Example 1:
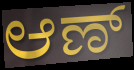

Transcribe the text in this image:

ಆಣ್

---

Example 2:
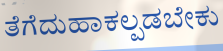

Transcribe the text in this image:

ತೆಗೆದುಹಾಕಲ್ಪಡಬೇಕು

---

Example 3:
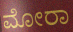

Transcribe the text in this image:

ಮೋರಾ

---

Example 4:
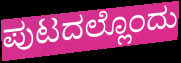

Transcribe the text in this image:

ಪುಟದಲ್ಲೊಂದು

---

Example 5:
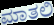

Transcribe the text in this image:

ಮಾತಲಿ